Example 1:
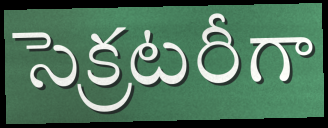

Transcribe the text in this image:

సెక్రటరీగా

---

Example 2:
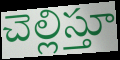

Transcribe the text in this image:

చెల్లిస్తూ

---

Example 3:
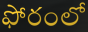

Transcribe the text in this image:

ఫోరంలో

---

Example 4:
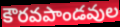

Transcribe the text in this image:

కౌరవపాండవుల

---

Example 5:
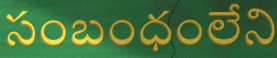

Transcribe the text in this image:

సంబంధంలేని